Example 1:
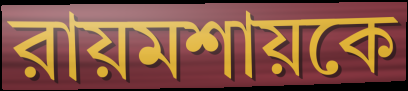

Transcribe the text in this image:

রায়মশায়কে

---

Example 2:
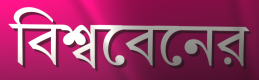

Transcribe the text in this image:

বিশ্ববেনের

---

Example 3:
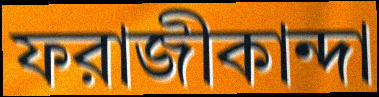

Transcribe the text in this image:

ফরাজীকান্দা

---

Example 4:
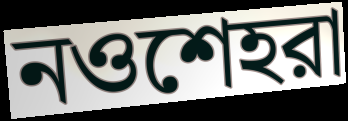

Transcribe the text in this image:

নওশেহরা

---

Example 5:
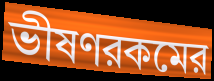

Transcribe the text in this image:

ভীষণরকমের